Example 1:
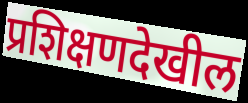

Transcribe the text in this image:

प्रशिक्षणदेखील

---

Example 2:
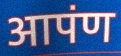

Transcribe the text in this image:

आपंण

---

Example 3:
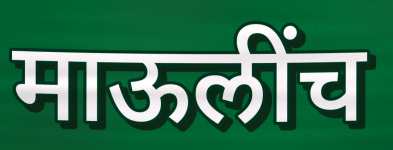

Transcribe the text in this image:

माऊलींच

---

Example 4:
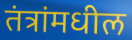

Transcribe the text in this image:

तंत्रांमधील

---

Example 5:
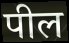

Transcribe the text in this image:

पील